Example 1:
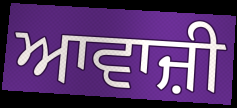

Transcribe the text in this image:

ਆਵਾਜ਼ੀ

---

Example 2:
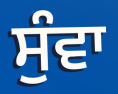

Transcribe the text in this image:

ਸੁੰਵਾ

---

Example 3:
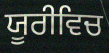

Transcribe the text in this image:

ਯੂਰੀਵਿਚ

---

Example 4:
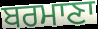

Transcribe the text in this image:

ਬਰਮਾਣਾ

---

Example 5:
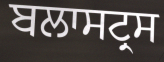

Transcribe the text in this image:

ਬਲਾਸਟ੍ਰਸ